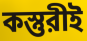
কস্তুরীই